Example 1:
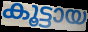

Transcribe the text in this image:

കൂട്ടായ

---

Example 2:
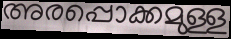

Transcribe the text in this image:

അരപ്പൊക്കമുള്ള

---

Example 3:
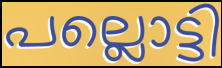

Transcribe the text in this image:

പല്ലൊട്ടി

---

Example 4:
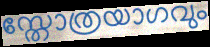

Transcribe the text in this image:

സ്തോത്രയാഗവും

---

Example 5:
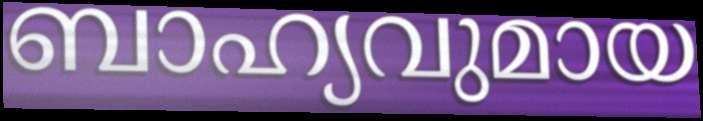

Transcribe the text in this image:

ബാഹ്യവുമായ